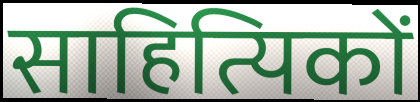
साहित्यिकों